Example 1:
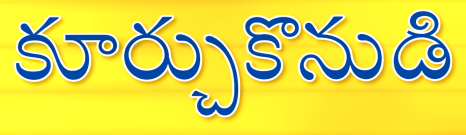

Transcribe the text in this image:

కూర్చుకొనుడి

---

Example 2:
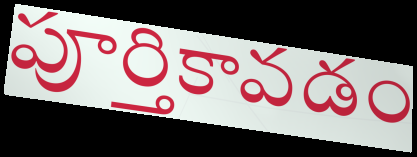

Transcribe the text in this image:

పూర్తికావడం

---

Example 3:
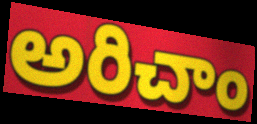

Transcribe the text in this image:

అరిచాం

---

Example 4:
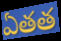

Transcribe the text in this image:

ఏతత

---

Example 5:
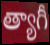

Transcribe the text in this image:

త్యాగీ